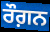
ਰੌਗ਼ਨ